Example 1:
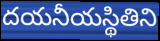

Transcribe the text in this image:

దయనీయస్థితిని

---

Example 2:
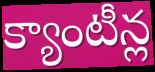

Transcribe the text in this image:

క్యాంటీన్ల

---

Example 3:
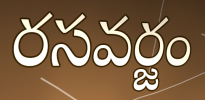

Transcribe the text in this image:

రసవర్జం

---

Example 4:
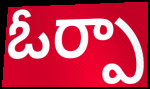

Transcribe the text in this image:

ఓర్పా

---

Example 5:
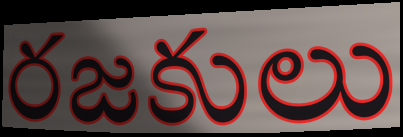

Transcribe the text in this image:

రజకులు